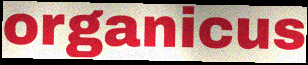
organicus